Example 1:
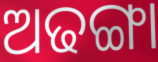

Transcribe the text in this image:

ଅଢଙ୍ଗା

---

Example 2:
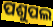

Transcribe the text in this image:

ପଶୁପଲ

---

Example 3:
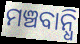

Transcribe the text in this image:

ମଞ୍ଚବାନ୍ଧି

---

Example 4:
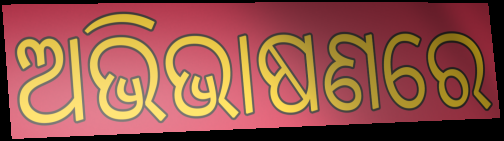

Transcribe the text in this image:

ଅଭିଭାଷଣରେ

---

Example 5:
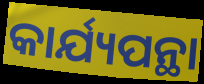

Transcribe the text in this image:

କାର୍ଯ୍ୟପନ୍ଥା